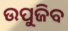
ଉପୁଜିବ